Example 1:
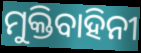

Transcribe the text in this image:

ମୁକ୍ତିବାହିନୀ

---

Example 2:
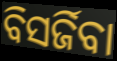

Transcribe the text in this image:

ବିସର୍ଜିବା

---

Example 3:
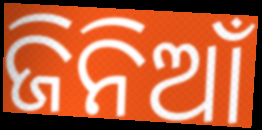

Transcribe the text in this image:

ଜିନିଆଁ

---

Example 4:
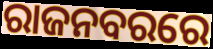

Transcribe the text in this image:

ରାଜନବରରେ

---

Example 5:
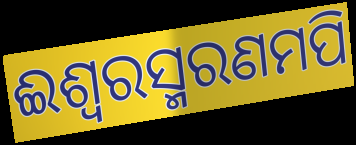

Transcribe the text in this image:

ଈଶ୍ଵରସ୍ମରଣମପି